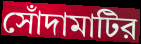
সোঁদামাটির